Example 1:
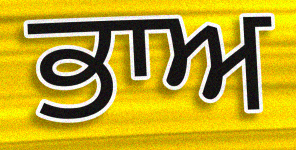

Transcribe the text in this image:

ਭਾਅ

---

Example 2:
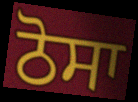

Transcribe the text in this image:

ਠੋਸਾ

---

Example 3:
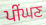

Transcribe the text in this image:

ਪੀਂਘਣ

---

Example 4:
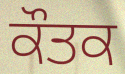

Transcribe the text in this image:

ਕੌਤਕ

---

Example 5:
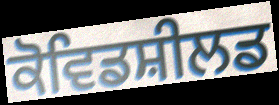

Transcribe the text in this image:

ਕੋਵਿਡਸ਼ੀਲਡ